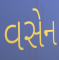
વસેન